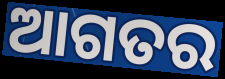
ଆଗତର